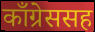
काँग्रेससह